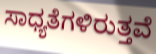
ಸಾಧ್ಯತೆಗಳಿರುತ್ತವೆ